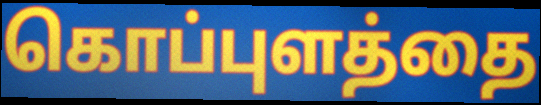
கொப்புளத்தை